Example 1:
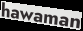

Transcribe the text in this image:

hawaman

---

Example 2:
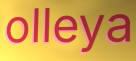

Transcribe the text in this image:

olleya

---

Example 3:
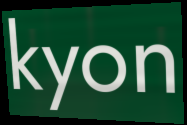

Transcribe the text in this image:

kyon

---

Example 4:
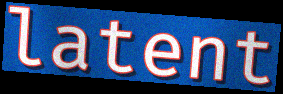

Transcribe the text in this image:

latent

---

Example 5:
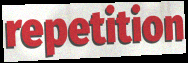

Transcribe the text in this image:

repetition